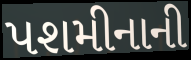
પશમીનાની